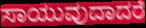
ಸಾಯುವುದಾದರೆ